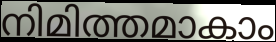
നിമിത്തമാകാം